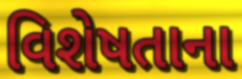
વિશેષતાના